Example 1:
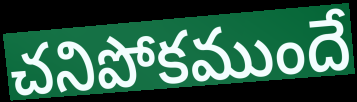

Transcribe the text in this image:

చనిపోకముందే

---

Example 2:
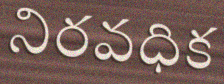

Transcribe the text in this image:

నిరవధిక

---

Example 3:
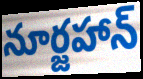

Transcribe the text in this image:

నూర్జహాన్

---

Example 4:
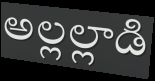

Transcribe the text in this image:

అల్లల్లాడి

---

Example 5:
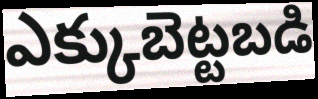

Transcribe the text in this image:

ఎక్కుబెట్టబడి